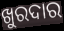
ଖୁରଦାର